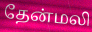
தேன்மலி